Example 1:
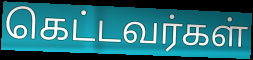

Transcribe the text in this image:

கெட்டவர்கள்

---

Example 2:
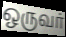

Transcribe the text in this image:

ஒருவர்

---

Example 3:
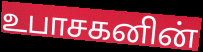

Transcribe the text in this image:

உபாசகனின்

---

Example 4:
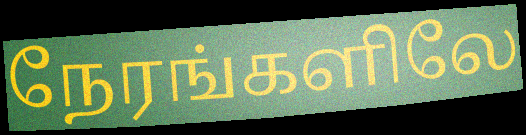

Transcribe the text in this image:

நேரங்களிலே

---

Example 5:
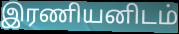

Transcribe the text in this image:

இரணியனிடம்